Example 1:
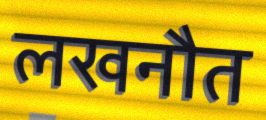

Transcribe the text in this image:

लखनौत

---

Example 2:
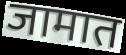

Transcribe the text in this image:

जामात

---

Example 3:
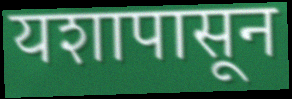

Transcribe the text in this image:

यशापासून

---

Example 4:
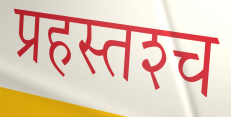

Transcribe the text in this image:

प्रहस्तश्च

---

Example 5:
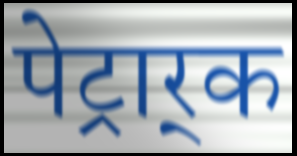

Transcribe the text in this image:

पेट्रार्क